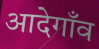
आदेगाँव